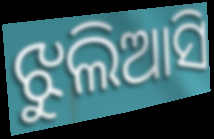
ଝୁଲିଆସି